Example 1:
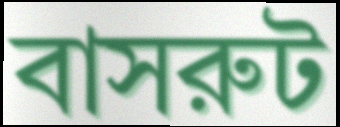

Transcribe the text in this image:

বাসরুট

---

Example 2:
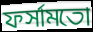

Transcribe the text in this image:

ফর্সামতো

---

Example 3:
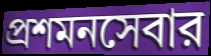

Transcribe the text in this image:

প্রশমনসেবার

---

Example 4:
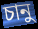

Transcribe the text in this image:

চানু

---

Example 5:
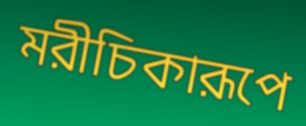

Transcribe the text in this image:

মরীচিকারূপে